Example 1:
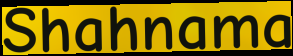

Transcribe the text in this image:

Shahnama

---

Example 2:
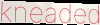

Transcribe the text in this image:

kneaded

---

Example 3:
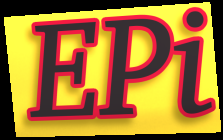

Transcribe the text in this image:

EPi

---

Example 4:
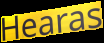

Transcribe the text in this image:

Hearas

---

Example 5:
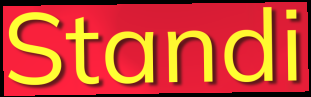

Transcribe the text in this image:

Standi